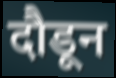
दौडून